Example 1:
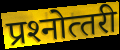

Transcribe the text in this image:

प्रश्‍नोत्‍तरी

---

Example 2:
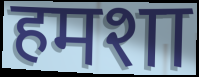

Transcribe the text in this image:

हमशा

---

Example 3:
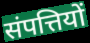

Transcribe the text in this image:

संपत्तियों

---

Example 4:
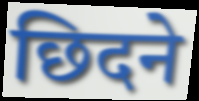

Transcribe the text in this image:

छिदने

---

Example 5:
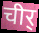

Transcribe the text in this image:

चीर्